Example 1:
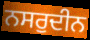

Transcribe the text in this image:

ਨਸਰੁਦੀਨ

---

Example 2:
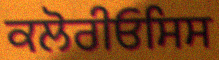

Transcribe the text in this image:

ਕਲੋਰੀਓਸਿਸ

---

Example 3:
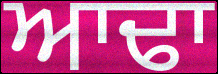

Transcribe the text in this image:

ਆਢਾ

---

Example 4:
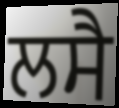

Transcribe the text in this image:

ਲਸੈ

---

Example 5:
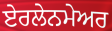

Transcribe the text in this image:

ਏਰਲੇਨਮੇਅਰ